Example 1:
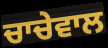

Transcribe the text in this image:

ਚਾਚੇਵਾਲ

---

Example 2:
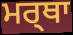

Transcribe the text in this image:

ਮਰ੍ਥਾ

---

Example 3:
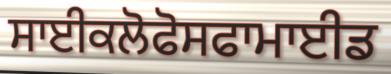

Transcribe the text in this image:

ਸਾਈਕਲੋਫੋਸਫਾਮਾਈਡ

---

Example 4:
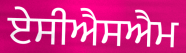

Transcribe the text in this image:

ਏਸੀਐਸਐਮ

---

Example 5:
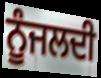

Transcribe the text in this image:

ਨੂੰਜਲਦੀ